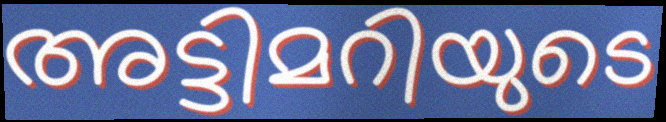
അട്ടിമറിയുടെ